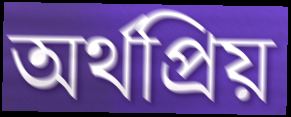
অর্থপ্রিয়